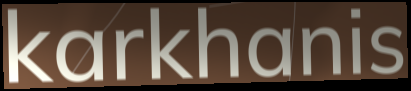
karkhanis